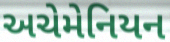
અચેમેનિયન